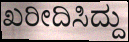
ಖರೀದಿಸಿದ್ದು